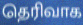
தெரிவாக